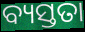
ବ୍ୟସ୍ତତା